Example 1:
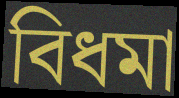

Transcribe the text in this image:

বিধমা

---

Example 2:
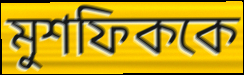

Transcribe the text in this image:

মুশফিককে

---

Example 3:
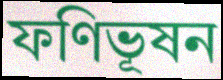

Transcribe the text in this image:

ফণিভূষন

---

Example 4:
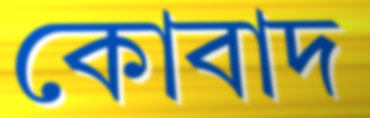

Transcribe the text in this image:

কোবাদ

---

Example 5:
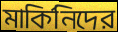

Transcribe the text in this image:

মার্কিনিদের